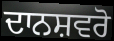
ਦਾਨਸ਼ਵਰੋ